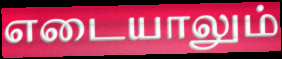
எடையாலும்